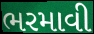
ભરમાવી